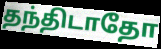
தந்திடாதோ